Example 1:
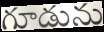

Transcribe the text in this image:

గూడును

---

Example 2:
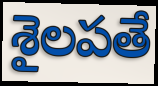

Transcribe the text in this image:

శైలపతే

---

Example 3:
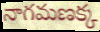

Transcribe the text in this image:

నాగమణక్క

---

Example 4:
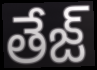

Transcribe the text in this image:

తేజ్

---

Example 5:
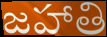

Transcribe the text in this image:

జహాతి